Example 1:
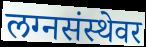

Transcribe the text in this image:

लग्नसंस्थेवर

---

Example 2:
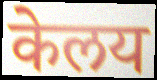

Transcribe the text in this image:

केलय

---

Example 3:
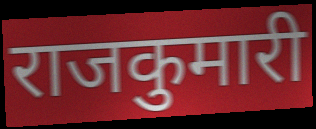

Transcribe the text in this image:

राजकुमारी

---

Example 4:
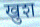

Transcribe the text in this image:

खुश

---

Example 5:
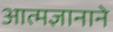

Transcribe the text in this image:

आत्मज्ञानाने